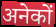
अनेकों